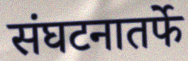
संघटनातर्फे